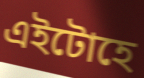
এইটোহে